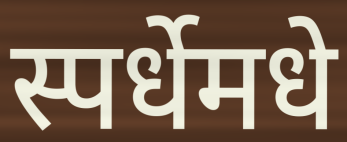
स्पर्धेमधे